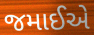
જમાઈએ